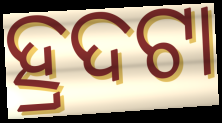
ହ୍ରଦଟା